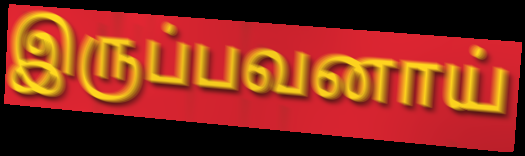
இருப்பவனாய்